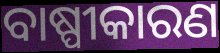
ବାଷ୍ପୀକାରଣ